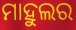
ମାହୁଲର